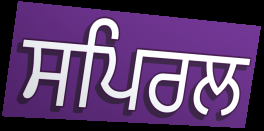
ਸਪਿਰਲ